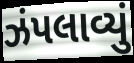
ઝંપલાવ્યું